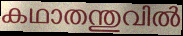
കഥാതന്തുവിൽ